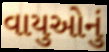
વાયુઓનું